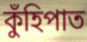
কুঁহিপাত